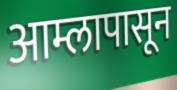
आम्लापासून